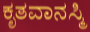
ಕೃತವಾನಸ್ಮಿ